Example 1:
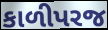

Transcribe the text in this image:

કાળીપરજ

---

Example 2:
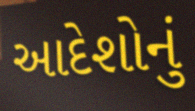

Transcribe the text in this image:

આદેશોનું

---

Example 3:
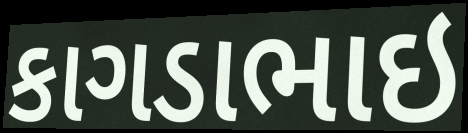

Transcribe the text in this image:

કાગડાભાઇ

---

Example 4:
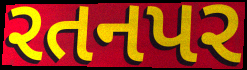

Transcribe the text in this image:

રતનપર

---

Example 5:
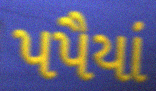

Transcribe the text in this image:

પપૈયાં